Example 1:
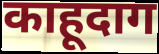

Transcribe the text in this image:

काहूदाग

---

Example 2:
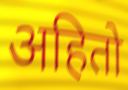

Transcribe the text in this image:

अहितो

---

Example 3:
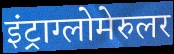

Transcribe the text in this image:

इंट्राग्लोमेरुलर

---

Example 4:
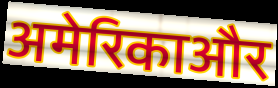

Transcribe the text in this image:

अमेरिकाऔर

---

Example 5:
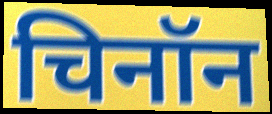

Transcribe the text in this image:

चिनॉन